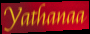
Yathanaa